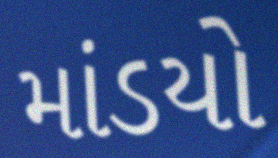
માંડયો